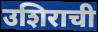
उशिराची